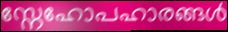
സ്നേഹോപഹാരങ്ങൾ